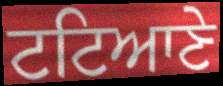
ਟਟਿਆਣੇ